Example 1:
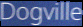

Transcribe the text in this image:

Dogville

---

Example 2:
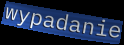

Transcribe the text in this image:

wypadanie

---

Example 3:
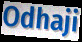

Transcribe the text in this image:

Odhaji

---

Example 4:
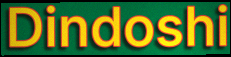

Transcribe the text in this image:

Dindoshi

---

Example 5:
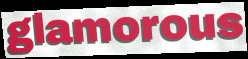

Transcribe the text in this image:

glamorous